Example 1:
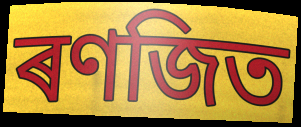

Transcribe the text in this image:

ৰণজিত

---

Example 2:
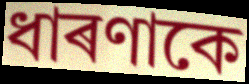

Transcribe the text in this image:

ধাৰণাকে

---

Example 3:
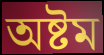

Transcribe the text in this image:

অষ্টম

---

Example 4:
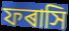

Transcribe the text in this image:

ফৰাসি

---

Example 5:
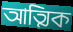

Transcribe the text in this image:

আত্মিক